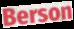
Berson